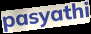
pasyathi